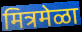
मित्रमेळा